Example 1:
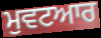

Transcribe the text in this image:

ਮੁਵਟਆਰ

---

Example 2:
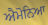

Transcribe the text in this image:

ਐਮੋਨਿਆ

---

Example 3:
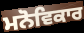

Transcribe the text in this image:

ਮਨੋਵਿਕਾਰ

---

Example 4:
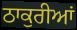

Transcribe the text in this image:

ਠਾਕੁਰੀਆਂ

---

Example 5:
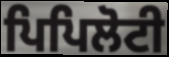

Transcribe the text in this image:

ਪਿਪਿਲੋਟੀ